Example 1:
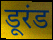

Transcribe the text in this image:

डूरंड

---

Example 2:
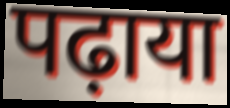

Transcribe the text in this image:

पढ़ाया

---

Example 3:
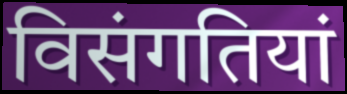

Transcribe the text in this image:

विसंगतियां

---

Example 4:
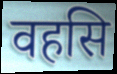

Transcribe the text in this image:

वहसि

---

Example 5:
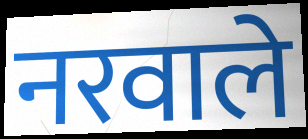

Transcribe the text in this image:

नरवाले